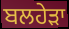
ਬਲਹੇੜਾ